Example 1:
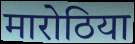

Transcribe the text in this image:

मारोठिया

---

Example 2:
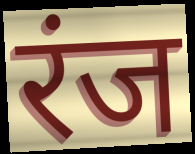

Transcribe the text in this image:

रंज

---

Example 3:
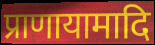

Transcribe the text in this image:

प्राणायामादि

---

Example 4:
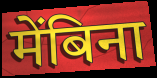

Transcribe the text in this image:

मेंबिना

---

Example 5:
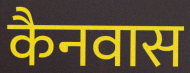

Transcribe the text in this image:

कैनवास